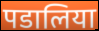
पडालिया